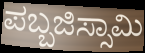
ಪಬ್ಬಜಿಸ್ಸಾಮಿ